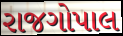
રાજગોપાલ